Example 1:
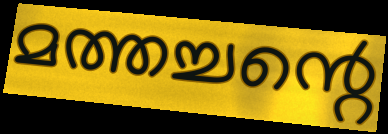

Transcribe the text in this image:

മത്തച്ചന്റെ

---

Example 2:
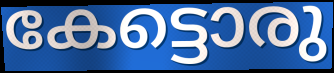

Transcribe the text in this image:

കേട്ടൊരു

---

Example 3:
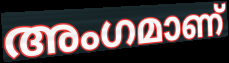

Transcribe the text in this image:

അംഗമാണ്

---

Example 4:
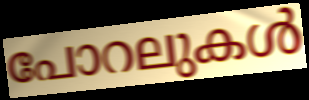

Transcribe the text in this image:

പോറലുകൾ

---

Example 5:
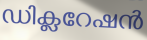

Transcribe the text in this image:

ഡിക്ലറേഷൻ